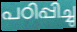
പഠിപ്പിച്ചു